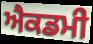
ਐਕਡਮੀ